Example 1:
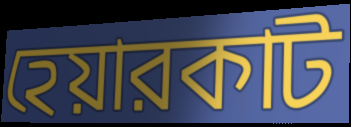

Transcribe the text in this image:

হেয়ারকাট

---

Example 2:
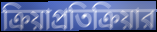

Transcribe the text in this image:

ক্রিয়াপ্রতিক্রিয়ার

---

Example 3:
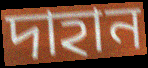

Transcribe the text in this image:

দাহান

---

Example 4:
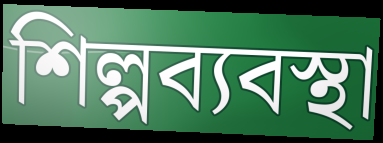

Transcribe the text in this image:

শিল্পব্যবস্থা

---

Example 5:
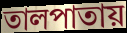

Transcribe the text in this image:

তালপাতায়